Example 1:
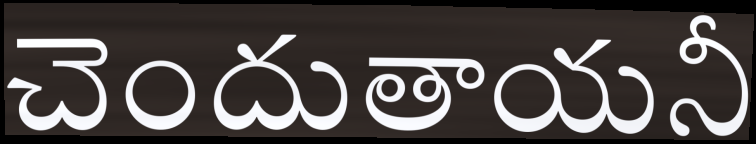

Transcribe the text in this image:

చెందుతాయనీ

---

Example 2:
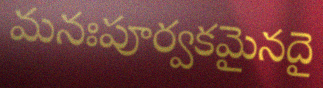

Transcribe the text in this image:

మనఃపూర్వకమైనదై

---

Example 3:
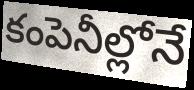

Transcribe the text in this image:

కంపెనీల్లోనే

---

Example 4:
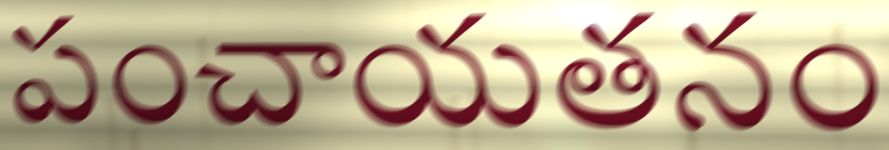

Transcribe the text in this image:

పంచాయతనం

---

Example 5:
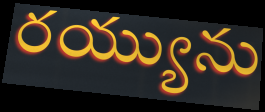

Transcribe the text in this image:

రయ్యును